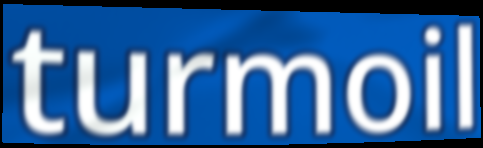
turmoil